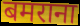
बमराना